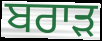
ਬਰਾਡ਼